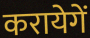
करायेगें